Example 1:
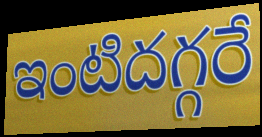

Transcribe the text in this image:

ఇంటిదగ్గరే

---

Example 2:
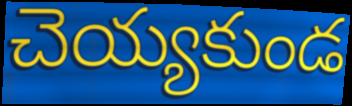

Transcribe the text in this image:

చెయ్యకుండ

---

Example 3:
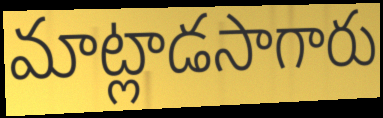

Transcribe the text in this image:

మాట్లాడసాగారు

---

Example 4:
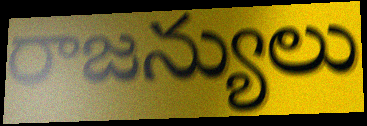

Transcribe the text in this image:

రాజన్యులు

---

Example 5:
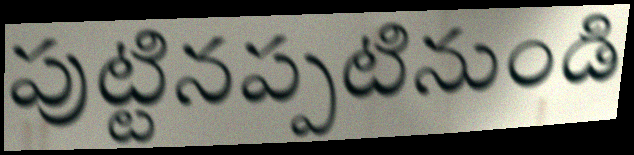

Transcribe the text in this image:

పుట్టినప్పటినుండి